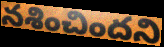
నశించిందని